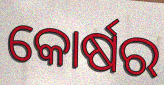
କୋର୍ଷର